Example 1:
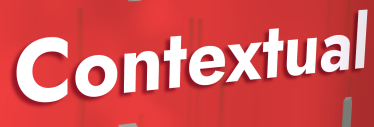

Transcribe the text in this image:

Contextual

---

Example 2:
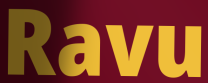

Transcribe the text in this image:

Ravu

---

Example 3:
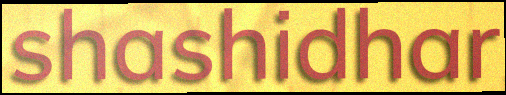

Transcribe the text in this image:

shashidhar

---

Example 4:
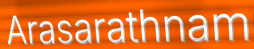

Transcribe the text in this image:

Arasarathnam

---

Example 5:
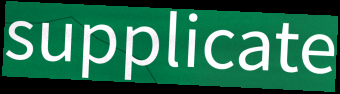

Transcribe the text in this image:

supplicate